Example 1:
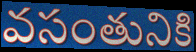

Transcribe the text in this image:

వసంతునికి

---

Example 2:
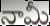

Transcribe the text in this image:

నామీ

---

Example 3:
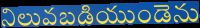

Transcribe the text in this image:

నిలువబడియుండెను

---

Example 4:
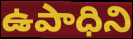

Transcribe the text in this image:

ఉపాధిని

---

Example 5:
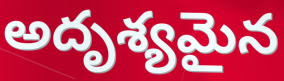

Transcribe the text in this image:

అదృశ్యమైన